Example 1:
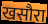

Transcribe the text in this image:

खसौरा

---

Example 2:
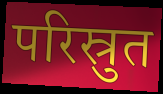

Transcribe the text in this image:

परिस्रुत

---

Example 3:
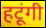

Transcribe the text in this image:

हटूंगी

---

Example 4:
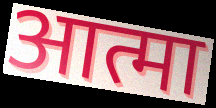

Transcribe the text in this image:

आत्‍मा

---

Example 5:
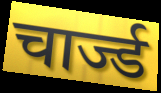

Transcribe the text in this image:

चार्ज्ड